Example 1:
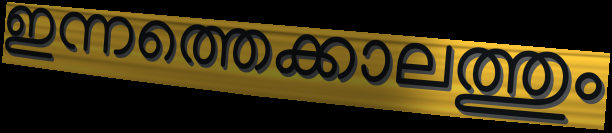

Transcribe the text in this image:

ഇന്നത്തെക്കാലത്തും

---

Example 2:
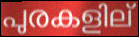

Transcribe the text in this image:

പുരകളില്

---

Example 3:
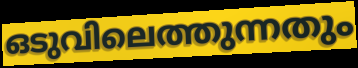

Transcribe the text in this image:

ഒടുവിലെത്തുന്നതും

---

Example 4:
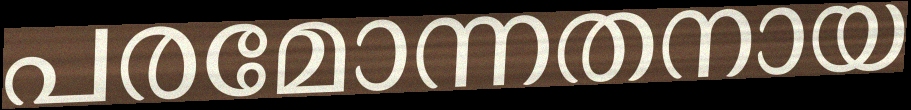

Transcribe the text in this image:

പരമോന്നതനായ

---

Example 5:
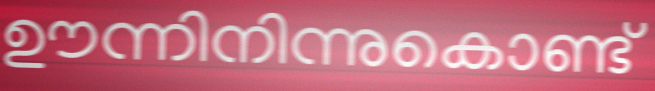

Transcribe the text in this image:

ഊന്നിനിന്നുകൊണ്ട്